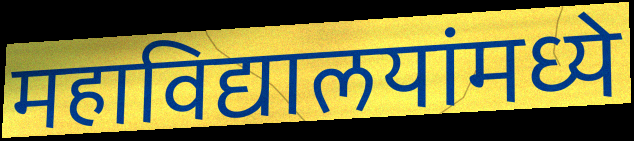
महाविद्यालयांमध्ये